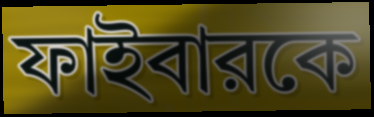
ফাইবারকে